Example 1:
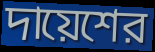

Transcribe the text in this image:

দায়েশের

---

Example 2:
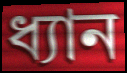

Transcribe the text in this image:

ধ্যান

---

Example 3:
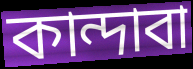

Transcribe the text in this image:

কান্দাবা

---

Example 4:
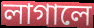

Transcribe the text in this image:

লাগালে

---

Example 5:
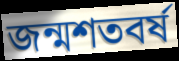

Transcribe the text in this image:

জন্মশতবর্ষ